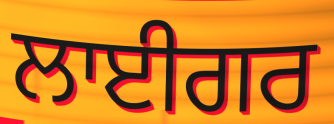
ਲਾਈਗਰ